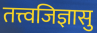
तत्त्वजिज्ञासु